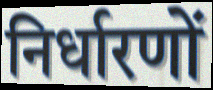
निर्धारणों